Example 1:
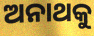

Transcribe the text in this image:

ଅନାଥକୁ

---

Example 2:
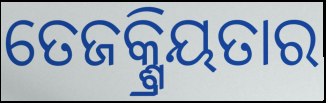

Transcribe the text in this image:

ତେଜକ୍ଶ୍ରିୟତାର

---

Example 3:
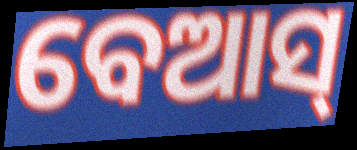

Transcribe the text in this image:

ବେଆସ୍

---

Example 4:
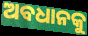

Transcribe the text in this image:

ଅବଧାନକୁ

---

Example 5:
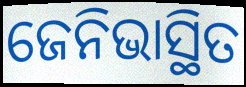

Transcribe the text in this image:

ଜେନିଭାସ୍ଥିତ